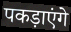
पकड़ाएंगे